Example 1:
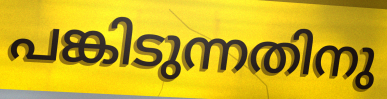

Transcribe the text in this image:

പങ്കിടുന്നതിനു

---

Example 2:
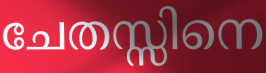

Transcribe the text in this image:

ചേതസ്സിനെ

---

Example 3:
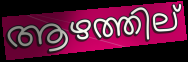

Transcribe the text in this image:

ആഴത്തില്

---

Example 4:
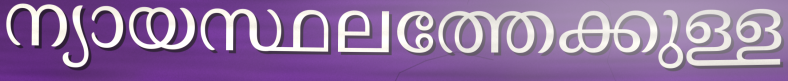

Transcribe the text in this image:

ന്യായസ്ഥലത്തേക്കുള്ള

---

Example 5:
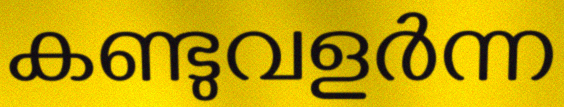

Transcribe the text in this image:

കണ്ടുവളർന്ന